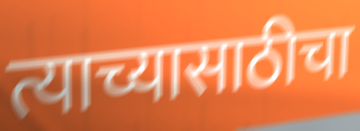
त्याच्यासाठीचा